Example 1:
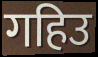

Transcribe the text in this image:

गहिउ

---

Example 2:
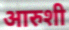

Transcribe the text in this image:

आरुशी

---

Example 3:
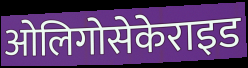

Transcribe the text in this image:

ओलिगोसेकेराइड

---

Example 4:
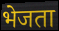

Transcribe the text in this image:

भेजता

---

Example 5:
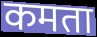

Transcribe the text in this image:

कमता